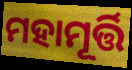
ମହାମୂର୍ତ୍ତି